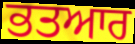
ਭਤਆਰ